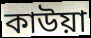
কাউয়া